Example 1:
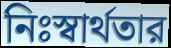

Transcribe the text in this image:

নিঃস্বার্থতার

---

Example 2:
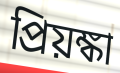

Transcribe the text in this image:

প্রিয়ঙ্কা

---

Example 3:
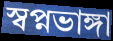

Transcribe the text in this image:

স্বপ্নভাঙ্গা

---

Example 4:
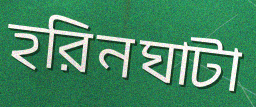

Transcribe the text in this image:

হরিনঘাটা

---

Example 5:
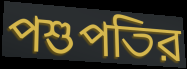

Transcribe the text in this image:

পশুপতির